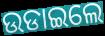
ଉଡାଇଲେ